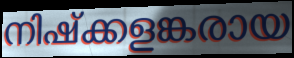
നിഷ്ക്കളങ്കരായ